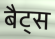
बैट्स